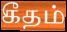
கீதம்